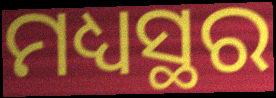
ମଧ୍ୟସ୍ଥର